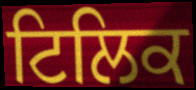
ਟਿਲਿਕ